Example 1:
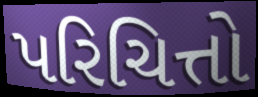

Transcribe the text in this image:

પરિચિત્તો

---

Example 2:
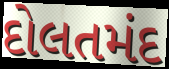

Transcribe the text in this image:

દોલતમંદ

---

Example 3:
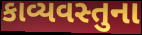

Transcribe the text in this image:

કાવ્યવસ્તુના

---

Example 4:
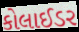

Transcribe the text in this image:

કોલાઈડર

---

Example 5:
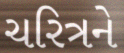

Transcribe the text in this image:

ચરિત્રને